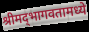
श्रीमद्‌भागवतामध्ये